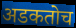
अडकतोच